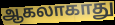
ஆகலாகாது